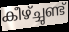
കീഴ്ച്ചുണ്ട്